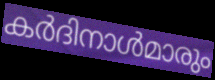
കർദിനാൾമാരും